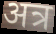
अत्र